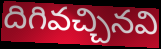
దిగివచ్చినవి